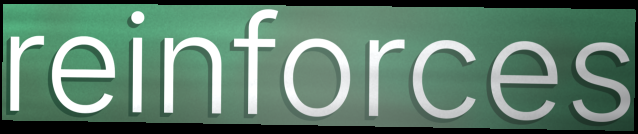
reinforces